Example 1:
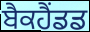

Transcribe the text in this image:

ਬੈਕਹੈਂਡਡ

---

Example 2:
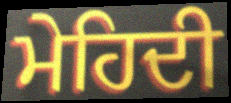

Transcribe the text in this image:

ਮੇਹਿਦੀ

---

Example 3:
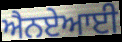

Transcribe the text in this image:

ਐਨਏਆਈ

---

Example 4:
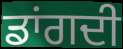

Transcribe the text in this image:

ਡਾਂਗਦੀ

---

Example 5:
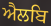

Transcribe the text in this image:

ਐਲਬਿ